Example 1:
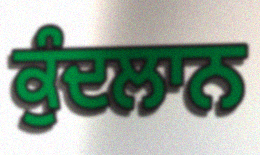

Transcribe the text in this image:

ਕੁੰਦਲਾਨ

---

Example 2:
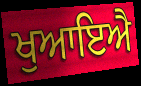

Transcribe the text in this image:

ਖੁਆਇਐ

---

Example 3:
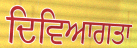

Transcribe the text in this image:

ਦਿਵਿਆਗਤਾ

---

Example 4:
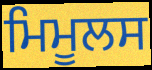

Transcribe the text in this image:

ਮਿਮੂਲਸ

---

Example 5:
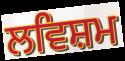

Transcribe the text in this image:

ਲਵਿਸ਼ਮ